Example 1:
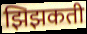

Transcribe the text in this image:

झिझकती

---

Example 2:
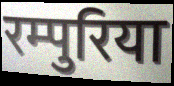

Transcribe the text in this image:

रम्पुरिया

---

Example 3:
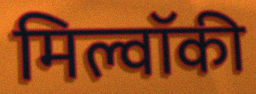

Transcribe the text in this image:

मिल्वॉकी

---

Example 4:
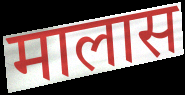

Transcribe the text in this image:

मालास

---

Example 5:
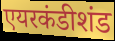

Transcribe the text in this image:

एयरकंडीशंड